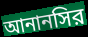
আনানসির